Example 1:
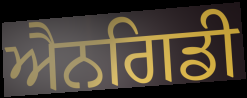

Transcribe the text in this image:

ਐਨਗਿਡੀ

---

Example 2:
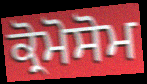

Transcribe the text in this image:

ਕ੍ਰੋਮੋਸੋਮ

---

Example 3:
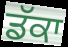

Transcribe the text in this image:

ਡੱਕਾ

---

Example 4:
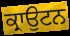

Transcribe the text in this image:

ਕ੍ਰਾਉਟਨ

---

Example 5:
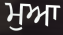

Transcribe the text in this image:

ਮੁਆ